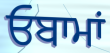
ਓਬਾਮਾਂ